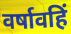
वर्षावहिं